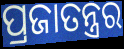
ପ୍ରଜାତନ୍ତ୍ରର